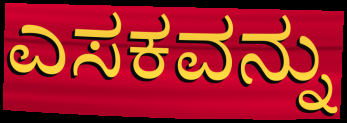
ಎಸಕವನ್ನು